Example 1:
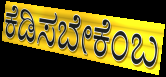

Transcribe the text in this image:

ಕೆಡಿಸಬೇಕೆಂಬ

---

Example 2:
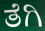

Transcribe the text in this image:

ತೆಗಿ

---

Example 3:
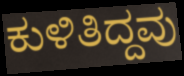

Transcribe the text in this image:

ಕುಳಿತಿದ್ದವು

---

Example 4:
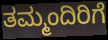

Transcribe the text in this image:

ತಮ್ಮಂದಿರಿಗೆ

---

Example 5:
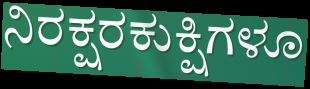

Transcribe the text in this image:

ನಿರಕ್ಷರಕುಕ್ಷಿಗಳೂ